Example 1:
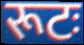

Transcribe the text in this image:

रूटः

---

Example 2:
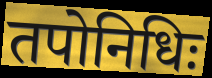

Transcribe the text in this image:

तपोनिधिः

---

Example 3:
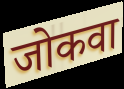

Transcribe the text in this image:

जोकवा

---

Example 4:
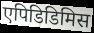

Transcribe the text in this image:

एपिडिडिमिस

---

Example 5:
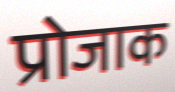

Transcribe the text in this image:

प्रोजाक